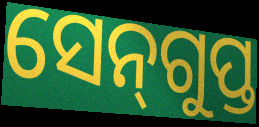
ସେନ୍‌ଗୁପ୍ତ